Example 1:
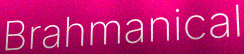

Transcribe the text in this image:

Brahmanical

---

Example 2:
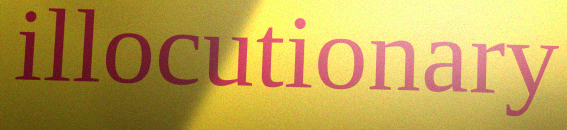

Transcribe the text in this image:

illocutionary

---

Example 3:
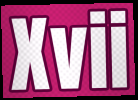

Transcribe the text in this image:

Xvii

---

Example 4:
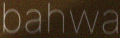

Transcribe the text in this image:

bahwa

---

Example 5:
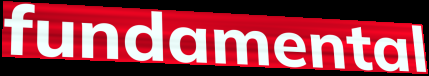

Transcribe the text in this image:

fundamental